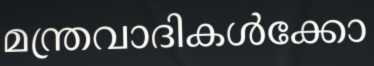
മന്ത്രവാദികൾക്കോ